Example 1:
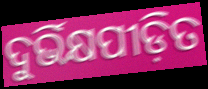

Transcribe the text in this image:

ଦୁର୍ଭିକ୍ଷପୀଡ଼ିତ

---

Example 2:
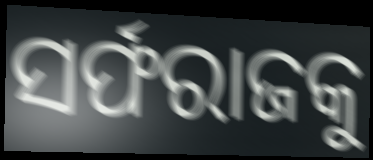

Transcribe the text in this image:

ସର୍ଫରାଜକୁ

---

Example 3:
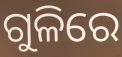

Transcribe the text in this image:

ଗୁଳିରେ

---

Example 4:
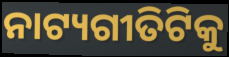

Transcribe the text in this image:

ନାଟ୍ୟଗୀତିଟିକୁ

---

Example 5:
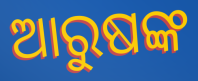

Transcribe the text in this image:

ଆରୁଷଙ୍କ